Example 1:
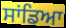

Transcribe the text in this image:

ਸਾਂਡਿਆ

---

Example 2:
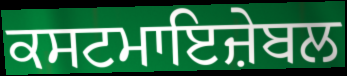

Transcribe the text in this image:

ਕਸਟਮਾਇਜ਼ੇਬਲ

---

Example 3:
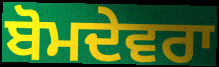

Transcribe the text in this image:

ਬੋਮਦੇਵਰਾ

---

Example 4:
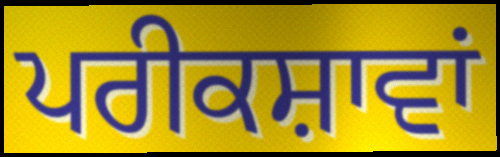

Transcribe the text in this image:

ਪਰੀਕਸ਼ਾਵਾਂ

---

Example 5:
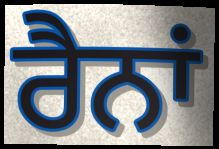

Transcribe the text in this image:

ਰੈਨਾਂ